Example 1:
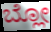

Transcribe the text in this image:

ಬ್ಲೋ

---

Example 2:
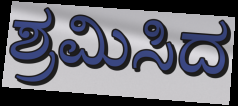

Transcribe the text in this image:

ಶ್ರಮಿಸಿದ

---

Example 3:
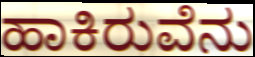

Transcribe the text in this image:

ಹಾಕಿರುವೆನು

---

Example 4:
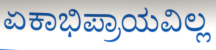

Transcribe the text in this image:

ಏಕಾಭಿಪ್ರಾಯವಿಲ್ಲ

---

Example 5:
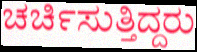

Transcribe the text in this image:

ಚರ್ಚಿಸುತ್ತಿದ್ದರು